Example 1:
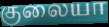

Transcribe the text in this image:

குலையா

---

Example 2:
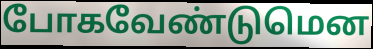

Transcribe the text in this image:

போகவேண்டுமென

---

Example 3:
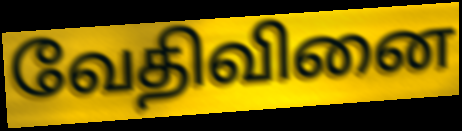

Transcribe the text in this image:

வேதிவினை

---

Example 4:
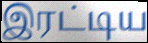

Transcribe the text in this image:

இரட்டிய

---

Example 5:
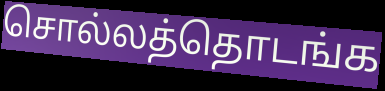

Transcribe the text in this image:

சொல்லத்தொடங்க